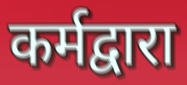
कर्मद्वारा